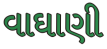
વાઘાણી